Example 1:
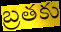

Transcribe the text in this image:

బ్రతకు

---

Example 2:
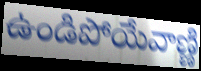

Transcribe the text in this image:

ఉండిపోయేవాణ్ణి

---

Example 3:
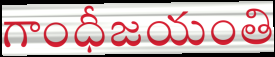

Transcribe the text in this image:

గాంధీజయంతి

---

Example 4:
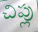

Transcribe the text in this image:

చిప్లు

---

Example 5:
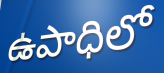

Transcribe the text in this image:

ఉపాధిలో